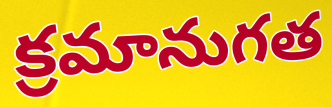
క్రమానుగత